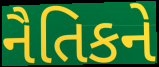
નૈતિકને